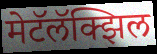
मेटॅलॅक्झिल